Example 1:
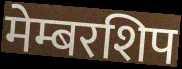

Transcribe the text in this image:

मेम्बरशिप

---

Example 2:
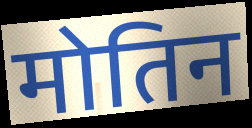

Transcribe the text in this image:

मोतिन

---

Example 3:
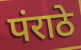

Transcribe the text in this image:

पंराठे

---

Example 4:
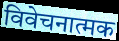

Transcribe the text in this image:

विवेचनात्मक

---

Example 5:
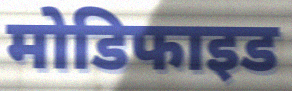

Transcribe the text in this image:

मोडिफाइड